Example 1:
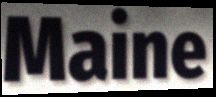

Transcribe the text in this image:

Maine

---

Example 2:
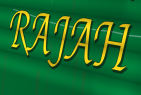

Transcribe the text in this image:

RAJAH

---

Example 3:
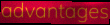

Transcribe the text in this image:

advantages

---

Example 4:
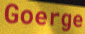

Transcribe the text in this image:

Goerge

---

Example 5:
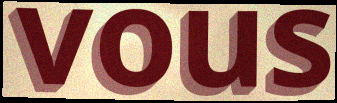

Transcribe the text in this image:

vous